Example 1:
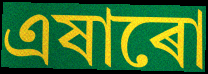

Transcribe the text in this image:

এষাৰো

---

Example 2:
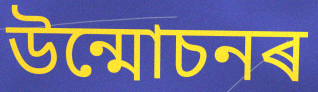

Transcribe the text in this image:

উন্মোচনৰ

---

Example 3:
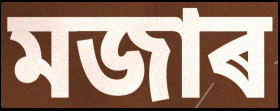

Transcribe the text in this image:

মজাৰ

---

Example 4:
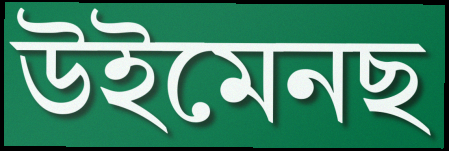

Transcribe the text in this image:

উইমেনছ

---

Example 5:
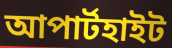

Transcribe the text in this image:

আপাৰ্টহাইট